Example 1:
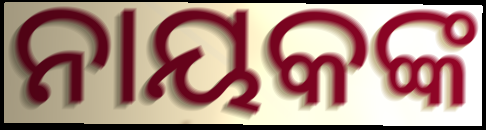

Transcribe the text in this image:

ନାୟକଙ୍କ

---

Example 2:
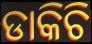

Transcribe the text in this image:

ଡାକିଚି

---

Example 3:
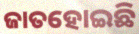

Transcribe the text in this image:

ଜାତହୋଇଛି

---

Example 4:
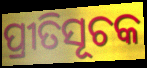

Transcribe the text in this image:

ପ୍ରୀତିସୂଚକ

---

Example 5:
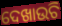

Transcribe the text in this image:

ଦେଖାଉଚି